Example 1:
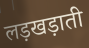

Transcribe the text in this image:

लड़खड़ाती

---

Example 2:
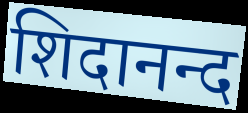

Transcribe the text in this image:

शिदानन्द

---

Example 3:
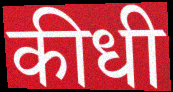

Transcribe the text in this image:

कीधी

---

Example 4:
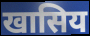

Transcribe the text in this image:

खासिय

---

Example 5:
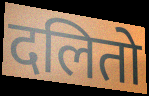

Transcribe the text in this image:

दलितो